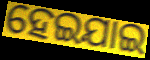
ହେଇଯାଇ